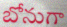
బోనుగా